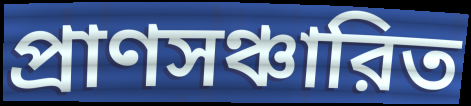
প্রাণসঞ্চারিত